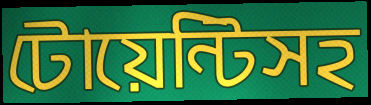
টোয়েন্টিসহ